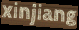
xinjiang